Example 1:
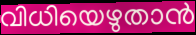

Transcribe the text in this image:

വിധിയെഴുതാൻ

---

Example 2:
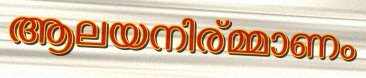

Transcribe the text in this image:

ആലയനിര്മ്മാണം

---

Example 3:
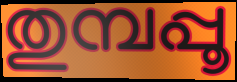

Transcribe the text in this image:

തുമ്പപ്പൂ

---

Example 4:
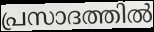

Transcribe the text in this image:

പ്രസാദത്തിൽ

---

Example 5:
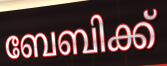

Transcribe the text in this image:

ബേബിക്ക്